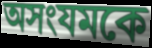
অসংযমকে